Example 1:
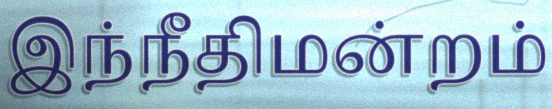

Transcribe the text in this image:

இந்நீதிமன்றம்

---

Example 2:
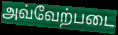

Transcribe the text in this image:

அவ்வேற்படை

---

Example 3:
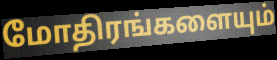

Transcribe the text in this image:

மோதிரங்களையும்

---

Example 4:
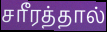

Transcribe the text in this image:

சரீரத்தால்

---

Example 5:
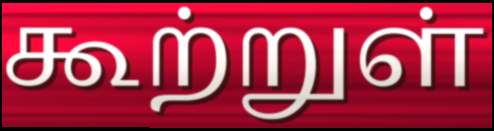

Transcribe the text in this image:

கூற்றுள்